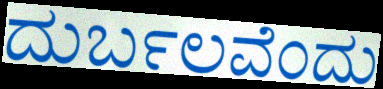
ದುರ್ಬಲವೆಂದು